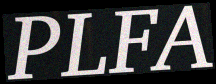
PLFA